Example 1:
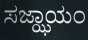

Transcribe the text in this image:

ಸಜ್ಝಾಯಂ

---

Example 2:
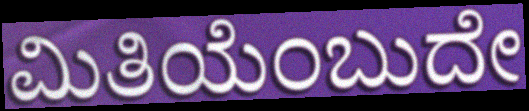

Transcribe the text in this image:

ಮಿತಿಯೆಂಬುದೇ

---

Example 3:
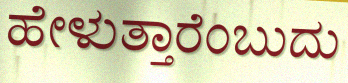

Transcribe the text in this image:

ಹೇಳುತ್ತಾರೆಂಬುದು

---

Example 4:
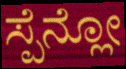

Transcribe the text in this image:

ಸ್ಪೆನ್ಲೋ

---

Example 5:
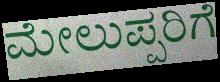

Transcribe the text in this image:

ಮೇಲುಪ್ಪರಿಗೆ